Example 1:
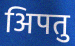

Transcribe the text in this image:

अिपतु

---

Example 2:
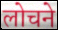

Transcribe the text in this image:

लोचने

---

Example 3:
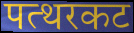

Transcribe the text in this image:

पत्थरकट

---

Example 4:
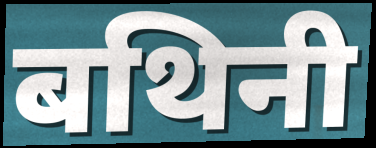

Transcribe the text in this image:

बथिनी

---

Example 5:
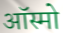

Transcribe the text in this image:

ऑस्मो